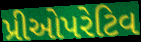
પ્રીઓપરેટિવ